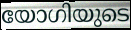
യോഗിയുടെ